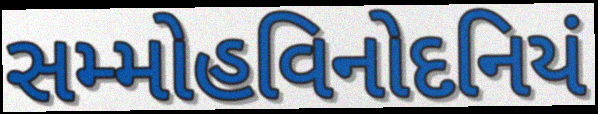
સમ્મોહવિનોદનિયં